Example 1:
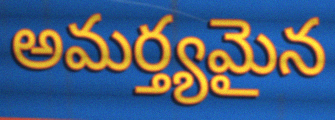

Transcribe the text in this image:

అమర్త్యమైన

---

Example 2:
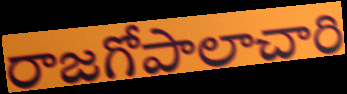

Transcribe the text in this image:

రాజగోపాలాచారి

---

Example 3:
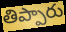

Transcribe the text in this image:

తిప్పారు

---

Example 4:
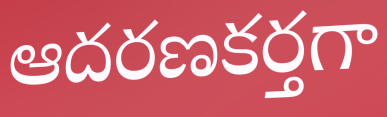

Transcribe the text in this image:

ఆదరణకర్తగా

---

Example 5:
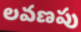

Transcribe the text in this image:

లవణపు